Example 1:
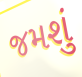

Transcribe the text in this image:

જમશું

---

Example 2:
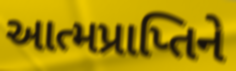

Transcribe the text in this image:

આત્મપ્રાપ્તિને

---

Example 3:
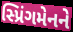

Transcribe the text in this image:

સ્પ્રિંગમેનને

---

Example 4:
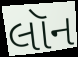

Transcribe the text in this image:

લૉન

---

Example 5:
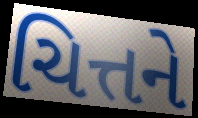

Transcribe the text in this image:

ચિત્તને